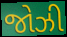
જોઝી